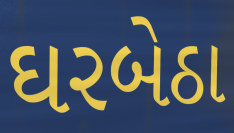
ઘરબેઠા